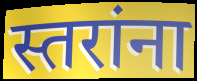
स्तरांना